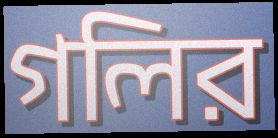
গলির